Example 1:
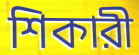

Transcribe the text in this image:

শিকারী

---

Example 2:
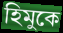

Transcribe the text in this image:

হিমুকে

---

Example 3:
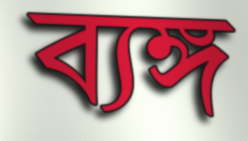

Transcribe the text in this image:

ব্যঙ্গ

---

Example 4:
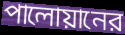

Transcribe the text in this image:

পালোয়ানের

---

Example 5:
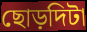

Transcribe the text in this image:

ছোড়দিটা